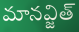
మానవ్జిత్